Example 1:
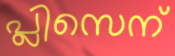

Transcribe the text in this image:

പ്ലിസെന്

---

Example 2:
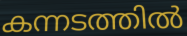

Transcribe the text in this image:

കന്നടത്തിൽ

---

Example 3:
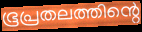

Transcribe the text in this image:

ഭൂപ്രതലത്തിന്റെ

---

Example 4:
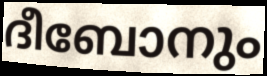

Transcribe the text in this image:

ദീബോനും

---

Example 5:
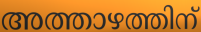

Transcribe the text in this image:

അത്താഴത്തിന്